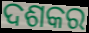
ଦଶକର